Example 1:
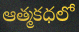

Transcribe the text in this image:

ఆత్మకధలో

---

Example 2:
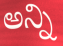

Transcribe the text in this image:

అన్ని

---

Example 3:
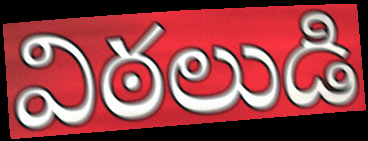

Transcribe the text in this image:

విఠలుడి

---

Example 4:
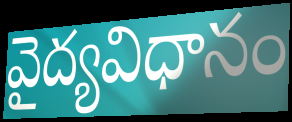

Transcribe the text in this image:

వైద్యవిధానం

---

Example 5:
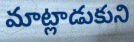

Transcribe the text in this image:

మాట్లాడుకుని